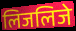
लिजलिजे